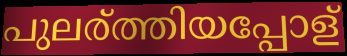
പുലര്ത്തിയപ്പോള്